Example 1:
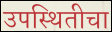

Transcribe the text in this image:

उपस्थितीचा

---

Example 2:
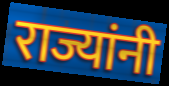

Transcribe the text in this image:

राज्यांनी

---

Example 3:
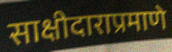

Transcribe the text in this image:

साक्षीदाराप्रमाणे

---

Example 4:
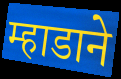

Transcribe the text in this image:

म्हाडाने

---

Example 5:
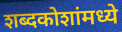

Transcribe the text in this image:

शब्दकोशांमध्ये